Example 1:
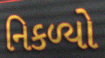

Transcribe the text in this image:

નિકળ્યો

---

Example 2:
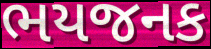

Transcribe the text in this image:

ભયજનક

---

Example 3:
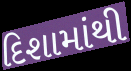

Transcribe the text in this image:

દિશામાંથી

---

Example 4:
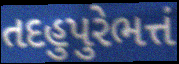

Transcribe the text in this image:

તદહુપુરેભત્તં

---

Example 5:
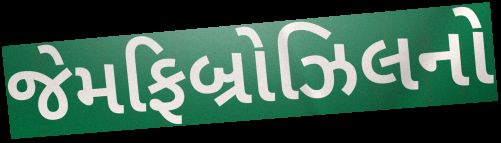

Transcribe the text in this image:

જેમફિબ્રોઝિલનો